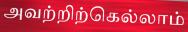
அவற்றிற்கெல்லாம்